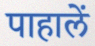
पाहालें